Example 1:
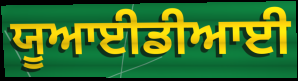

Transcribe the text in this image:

ਯੂਆਈਡੀਆਈ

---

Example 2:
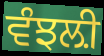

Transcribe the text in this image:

ਵੰਝਲ਼ੀ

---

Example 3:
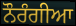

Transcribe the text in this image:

ਨੌਰੰਗੀਆ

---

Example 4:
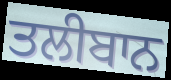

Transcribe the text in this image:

ਤਲੀਬਾਨ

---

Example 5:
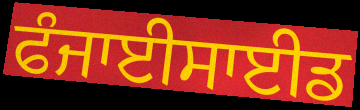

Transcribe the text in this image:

ਫੰਜਾਈਸਾਈਡ